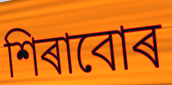
শিৰাবোৰ